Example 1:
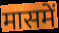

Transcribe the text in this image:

मासमें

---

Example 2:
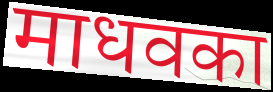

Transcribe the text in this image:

माधवका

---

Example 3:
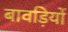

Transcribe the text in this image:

बावड़ियों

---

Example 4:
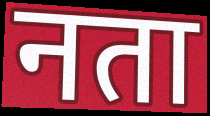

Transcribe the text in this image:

नता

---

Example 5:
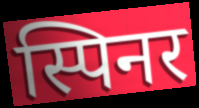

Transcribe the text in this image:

स्पिनर